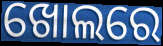
ଖୋଲରେ